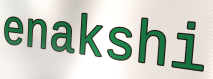
enakshi